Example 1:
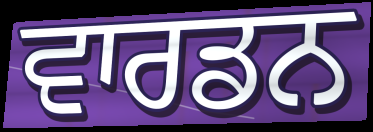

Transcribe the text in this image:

ਵਾਰਡਨ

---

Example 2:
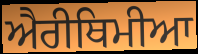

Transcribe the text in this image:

ਐਰੀਥਿਮੀਆ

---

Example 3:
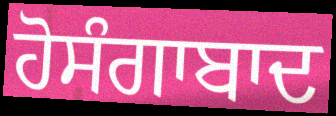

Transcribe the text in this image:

ਹੋਸੰਗਾਬਾਦ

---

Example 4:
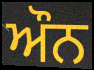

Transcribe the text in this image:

ਔਨ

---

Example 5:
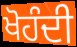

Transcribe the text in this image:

ਖੋਹੰਦੀ